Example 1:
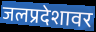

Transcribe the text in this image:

जलप्रदेशावर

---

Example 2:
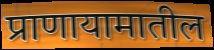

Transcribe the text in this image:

प्राणायामातील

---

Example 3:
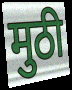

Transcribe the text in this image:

मुठी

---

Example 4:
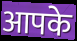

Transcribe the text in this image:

आपके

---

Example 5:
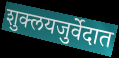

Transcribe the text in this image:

शुक्लयजुर्वेदात